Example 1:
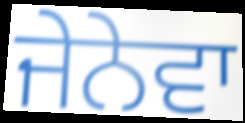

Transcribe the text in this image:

ਜੇਨੇਵਾ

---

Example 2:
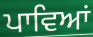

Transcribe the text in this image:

ਪਾਵਿਆਂ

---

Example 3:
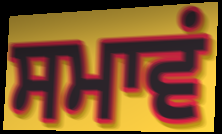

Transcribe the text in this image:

ਸਮਾਵਂ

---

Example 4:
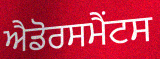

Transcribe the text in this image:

ਐਡੋਰਸਮੈਂਟਸ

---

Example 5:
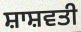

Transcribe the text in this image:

ਸ਼ਾਸ਼ਵਤੀ